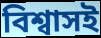
বিশ্বাসই